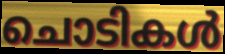
ചൊടികൾ